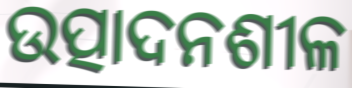
ଉତ୍ପାଦନଶୀଳ